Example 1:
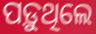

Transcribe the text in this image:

ପଡ଼ୁଥିଲେ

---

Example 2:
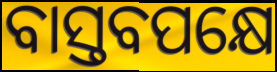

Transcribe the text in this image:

ବାସ୍ତବପକ୍ଷେ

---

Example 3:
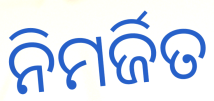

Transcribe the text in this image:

ନିମର୍ଜିତ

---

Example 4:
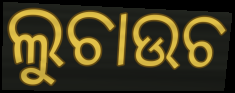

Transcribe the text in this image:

ଲୁଚାଉଚ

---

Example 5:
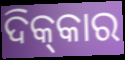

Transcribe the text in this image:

ଦିକ୍‌କାର